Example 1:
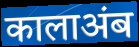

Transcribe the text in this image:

कालाअंब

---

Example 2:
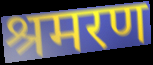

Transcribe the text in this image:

श्रमरण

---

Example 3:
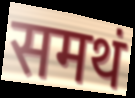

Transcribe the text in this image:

समथं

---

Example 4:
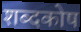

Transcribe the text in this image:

शब्दकोष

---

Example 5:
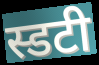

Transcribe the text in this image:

स्डटी